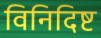
विनिदिष्ट